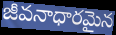
జీవనాధారమైన